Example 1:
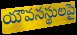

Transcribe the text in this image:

యౌవనస్థులపై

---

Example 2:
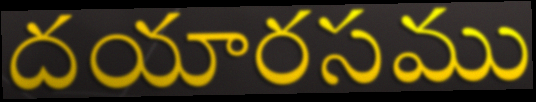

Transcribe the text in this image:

దయారసము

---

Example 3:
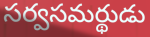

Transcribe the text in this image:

సర్వసమర్థుడు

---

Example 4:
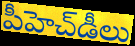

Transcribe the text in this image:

పీహెచ్‌డీలు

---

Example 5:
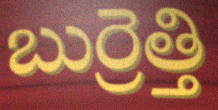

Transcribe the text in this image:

బుర్రెత్తి